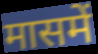
मासमें